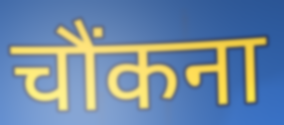
चौंकना